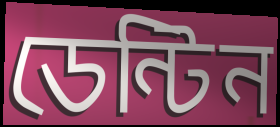
ডেন্টিন